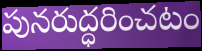
పునరుద్ధరించటం